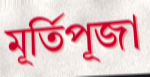
মূর্তিপূজা